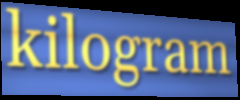
kilogram